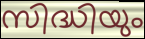
സിദ്ധിയും